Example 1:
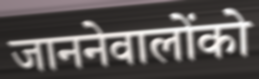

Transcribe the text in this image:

जाननेवालोंको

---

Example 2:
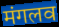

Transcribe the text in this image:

मंगलव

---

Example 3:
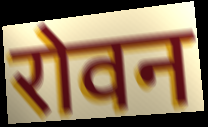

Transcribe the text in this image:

रोवन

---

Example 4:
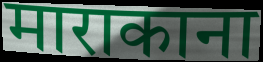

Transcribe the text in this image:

माराकाना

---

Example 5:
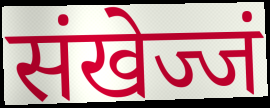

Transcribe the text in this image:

संखेज्जं